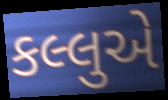
કલ્લુએ